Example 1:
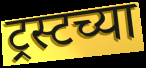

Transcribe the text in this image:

ट्रस्टच्या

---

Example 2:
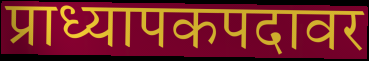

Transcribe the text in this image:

प्राध्यापकपदावर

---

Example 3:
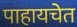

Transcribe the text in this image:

पाहायचेत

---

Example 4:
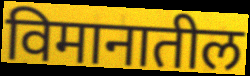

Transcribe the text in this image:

विमानातील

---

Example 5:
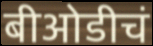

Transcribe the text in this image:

बीओडीचं